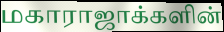
மகாராஜாக்களின்